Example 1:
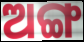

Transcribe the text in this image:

ଅଙ୍ଗ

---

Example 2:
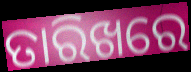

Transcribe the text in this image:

ତାରିଖରେ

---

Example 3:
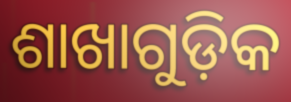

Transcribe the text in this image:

ଶାଖାଗୁଡ଼ିକ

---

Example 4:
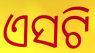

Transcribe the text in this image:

ଏସଟି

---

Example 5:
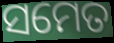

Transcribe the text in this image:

ସମେତ